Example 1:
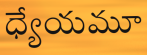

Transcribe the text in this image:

ధ్యేయమూ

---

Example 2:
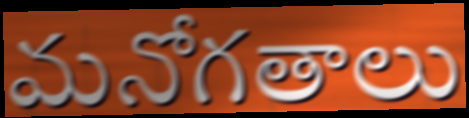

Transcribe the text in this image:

మనోగతాలు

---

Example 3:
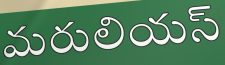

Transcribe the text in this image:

మరులియస్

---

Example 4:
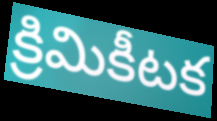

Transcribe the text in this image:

క్రిమికీటక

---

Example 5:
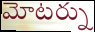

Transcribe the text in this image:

మోటర్ను